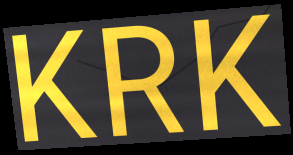
KRK